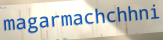
magarmachchhni